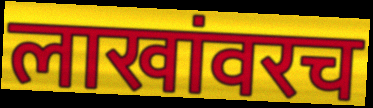
लाखांवरच